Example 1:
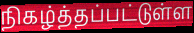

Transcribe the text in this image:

நிகழ்த்தப்பட்டுள்ள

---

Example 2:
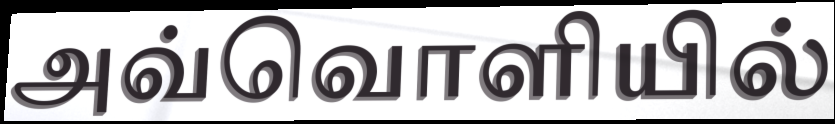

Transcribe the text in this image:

அவ்வொளியில்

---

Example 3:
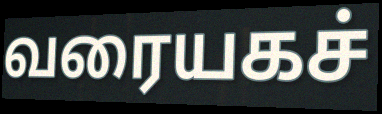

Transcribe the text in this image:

வரையகச்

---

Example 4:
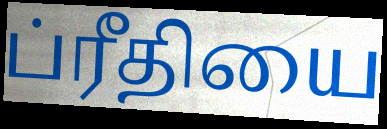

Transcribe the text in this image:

ப்ரீதியை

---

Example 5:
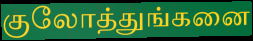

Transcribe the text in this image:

குலோத்துங்கனை